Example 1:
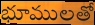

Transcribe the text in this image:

భూములతో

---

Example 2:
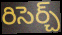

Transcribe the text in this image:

రిసెర్చ్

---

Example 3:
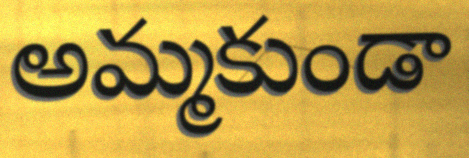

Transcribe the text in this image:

అమ్మకుండా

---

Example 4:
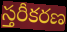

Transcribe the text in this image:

స్తరీకరణ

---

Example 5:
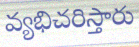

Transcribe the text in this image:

వ్యభిచరిస్తారు